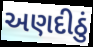
અણદીઠું